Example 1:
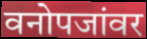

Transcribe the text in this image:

वनोपजांवर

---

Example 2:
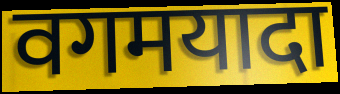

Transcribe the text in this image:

वगमयादा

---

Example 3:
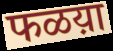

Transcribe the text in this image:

फळय़ा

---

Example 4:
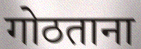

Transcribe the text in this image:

गोठताना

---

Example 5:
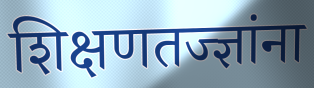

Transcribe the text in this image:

शिक्षणतज्ज्ञांना